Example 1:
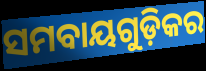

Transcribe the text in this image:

ସମବାୟଗୁଡ଼ିକର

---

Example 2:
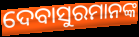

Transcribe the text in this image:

ଦେବାସୁରମାନଙ୍କ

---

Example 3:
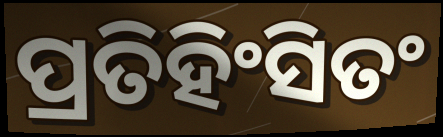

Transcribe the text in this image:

ପ୍ରତିହିଂସିତଂ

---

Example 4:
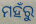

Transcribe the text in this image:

ମହଁରୁ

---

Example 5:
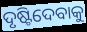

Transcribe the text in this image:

ଦୃଷ୍ଟିଦେବାକୁ